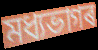
মধ্যভাগৰ